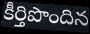
కీర్తిపొందిన